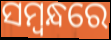
ସମ୍ବନ୍ଧରେ